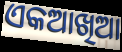
ଏକଆଖିଆ